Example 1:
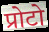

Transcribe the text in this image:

प्रोटो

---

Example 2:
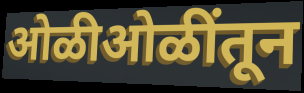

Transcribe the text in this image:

ओळीओळींतून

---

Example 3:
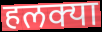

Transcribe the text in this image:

हलक्या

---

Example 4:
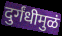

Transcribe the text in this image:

दुर्गंधीमुळं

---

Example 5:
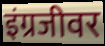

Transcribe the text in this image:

इंग्रजीवर